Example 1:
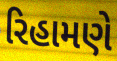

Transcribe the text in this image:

રિહામણે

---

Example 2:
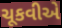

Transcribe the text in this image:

ચૂકવીએ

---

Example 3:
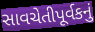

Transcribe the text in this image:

સાવચેતીપૂર્વકનું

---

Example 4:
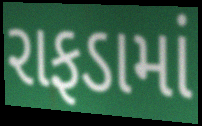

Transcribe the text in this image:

રાફડામાં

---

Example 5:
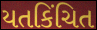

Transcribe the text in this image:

યતકિંચિત